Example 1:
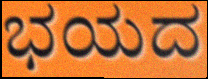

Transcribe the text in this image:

ಭಯದ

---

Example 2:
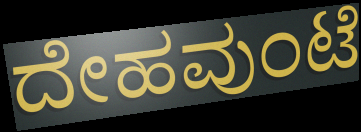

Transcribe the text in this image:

ದೇಹವುಂಟೆ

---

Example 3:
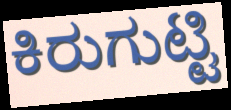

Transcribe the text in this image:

ಕಿರುಗುಟ್ಟಿ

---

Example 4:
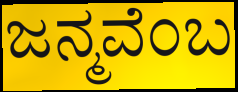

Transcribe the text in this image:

ಜನ್ಮವೆಂಬ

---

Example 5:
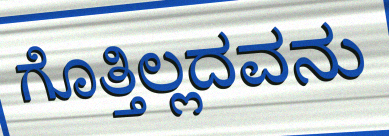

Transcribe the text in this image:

ಗೊತ್ತಿಲ್ಲದವನು